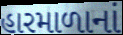
હારમાળાનાં